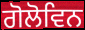
ਗੋਲੋਵਿਨ